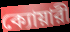
ক্যোয়ারী